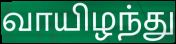
வாயிழந்து